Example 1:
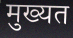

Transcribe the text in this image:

मुख्यत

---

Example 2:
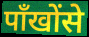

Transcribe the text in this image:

पाँखोंसे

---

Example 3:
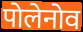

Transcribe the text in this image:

पोलेनोव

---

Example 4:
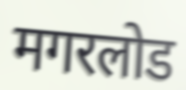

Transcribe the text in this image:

मगरलोड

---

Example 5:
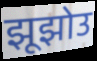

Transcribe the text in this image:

झूझोउ